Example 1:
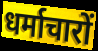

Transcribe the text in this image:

धर्माचारों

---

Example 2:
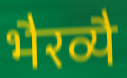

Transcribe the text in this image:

भैरव्यै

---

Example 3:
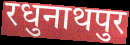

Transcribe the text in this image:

रधुनाथपुर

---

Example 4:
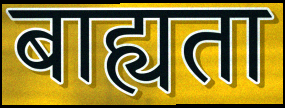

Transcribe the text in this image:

बाह्यता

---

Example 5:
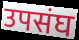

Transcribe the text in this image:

उपसंघ